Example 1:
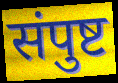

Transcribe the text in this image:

संपुष्ट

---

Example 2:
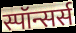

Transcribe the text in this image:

स्पॉन्सर्स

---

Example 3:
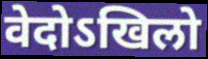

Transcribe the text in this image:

वेदोऽखिलो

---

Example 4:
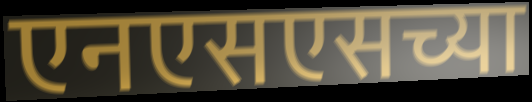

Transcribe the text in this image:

एनएसएसच्या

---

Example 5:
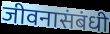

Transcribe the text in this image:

जीवनासंबंधी